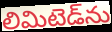
లిమిటెడ్‌ను